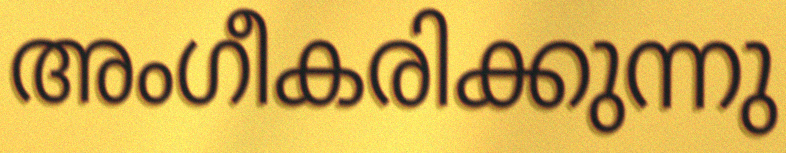
അംഗീകരിക്കുന്നു